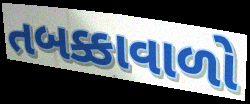
તબક્કાવાળો